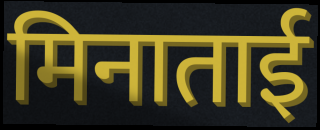
मिनाताई